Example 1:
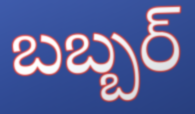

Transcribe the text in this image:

బబ్బర్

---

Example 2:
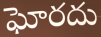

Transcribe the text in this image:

ఘోరదు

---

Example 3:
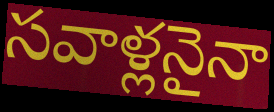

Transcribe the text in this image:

సవాళ్లనైనా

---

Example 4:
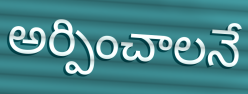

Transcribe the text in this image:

అర్పించాలనే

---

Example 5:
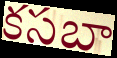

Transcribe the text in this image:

కసబా